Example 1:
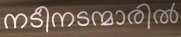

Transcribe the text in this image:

നടീനടന്മാരിൽ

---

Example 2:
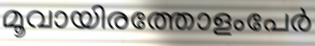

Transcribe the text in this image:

മൂവായിരത്തോളംപേർ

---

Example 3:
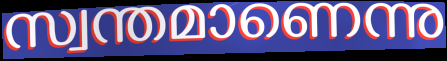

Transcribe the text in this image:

സ്വന്തമാണെന്നു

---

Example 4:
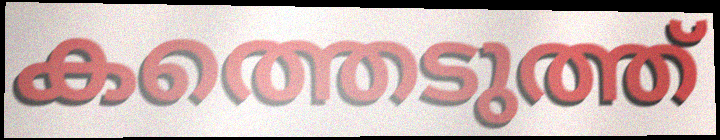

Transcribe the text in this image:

കത്തെടുത്ത്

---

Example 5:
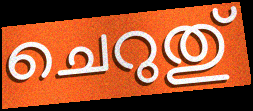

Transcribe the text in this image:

ചെറുതു്